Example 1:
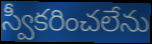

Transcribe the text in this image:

స్వీకరించలేను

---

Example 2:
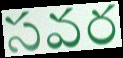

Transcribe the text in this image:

సవర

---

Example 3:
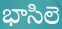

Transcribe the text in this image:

భాసిలె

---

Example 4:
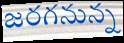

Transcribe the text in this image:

జరగనున్న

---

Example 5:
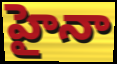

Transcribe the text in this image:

హైనా